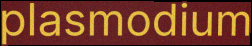
plasmodium